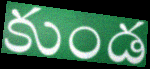
కుండ